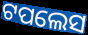
ଟପଲେସ